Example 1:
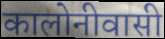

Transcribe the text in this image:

कालोनीवासी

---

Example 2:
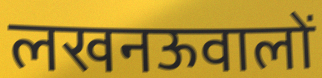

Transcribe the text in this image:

लखनऊवालों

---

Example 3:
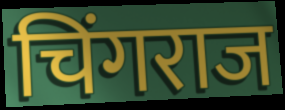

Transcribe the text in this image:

चिंगराज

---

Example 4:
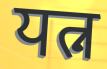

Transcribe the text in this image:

यत्न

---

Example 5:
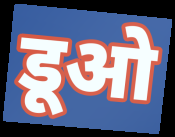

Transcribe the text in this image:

डूओ